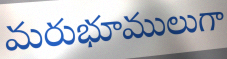
మరుభూములుగా